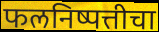
फलनिष्पत्तीचा